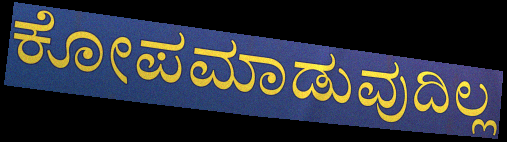
ಕೋಪಮಾಡುವುದಿಲ್ಲ